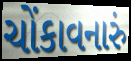
ચોંકાવનારું